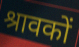
श्रावकों